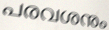
പരവശനും